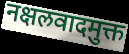
नक्षलवादमुक्त